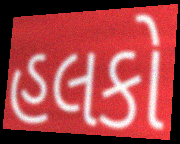
હલકો